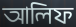
আলিফ